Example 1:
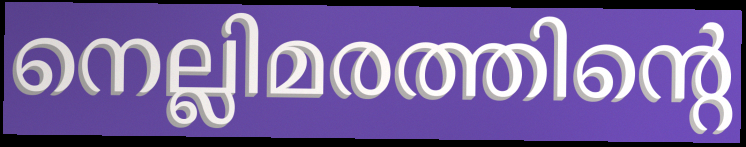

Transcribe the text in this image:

നെല്ലിമരത്തിന്റെ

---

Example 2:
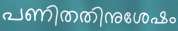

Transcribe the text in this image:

പണിതതിനുശേഷം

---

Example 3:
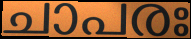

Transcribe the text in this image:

ചാപരഃ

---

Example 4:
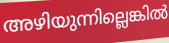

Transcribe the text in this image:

അഴിയുന്നില്ലെങ്കിൽ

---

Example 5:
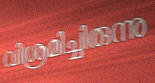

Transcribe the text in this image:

വിശ്രമിച്ചിരുന്നു